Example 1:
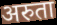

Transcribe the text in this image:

अरुता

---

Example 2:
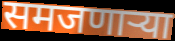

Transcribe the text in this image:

समजणाऱ्या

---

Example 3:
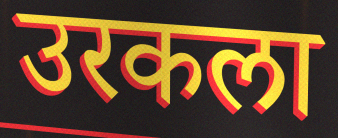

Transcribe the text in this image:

उरकला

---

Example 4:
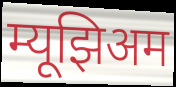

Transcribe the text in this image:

म्यूझिअम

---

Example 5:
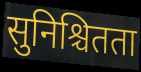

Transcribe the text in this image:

सुनिश्चितता